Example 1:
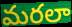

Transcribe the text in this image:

మరలా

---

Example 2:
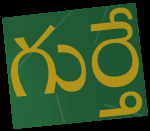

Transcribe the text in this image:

గుర్తే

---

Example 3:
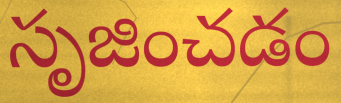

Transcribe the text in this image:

సృజించడం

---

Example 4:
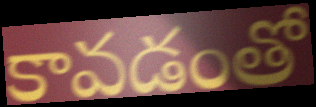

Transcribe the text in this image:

కావడంతో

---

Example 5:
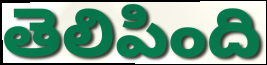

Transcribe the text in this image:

తెలిపింది